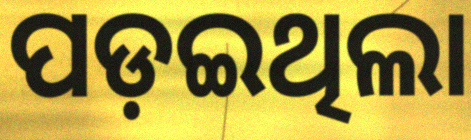
ପଡ଼ଇଥିଲା